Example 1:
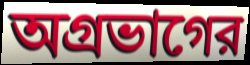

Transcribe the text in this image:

অগ্রভাগের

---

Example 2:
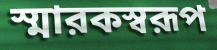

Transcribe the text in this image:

স্মারকস্বরূপ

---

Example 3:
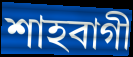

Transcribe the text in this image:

শাহবাগী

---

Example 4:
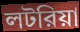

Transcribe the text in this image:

লটরিয়া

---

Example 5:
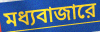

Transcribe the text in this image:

মধ্যবাজারে